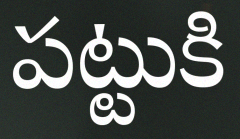
పట్టుకి